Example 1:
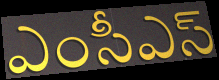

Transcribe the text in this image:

ఎంసీఎస్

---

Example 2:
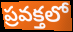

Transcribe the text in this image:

ప్రవక్తలో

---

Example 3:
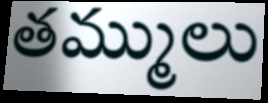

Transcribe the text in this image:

తమ్ములు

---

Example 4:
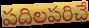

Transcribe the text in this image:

పదిలపరిచే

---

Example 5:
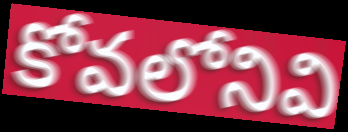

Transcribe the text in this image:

కోవలోనివి